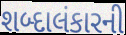
શબ્દાલંકારની